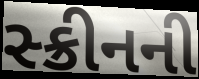
સ્ક્રીનની